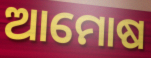
ଆମୋଷ